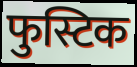
फुस्टिक